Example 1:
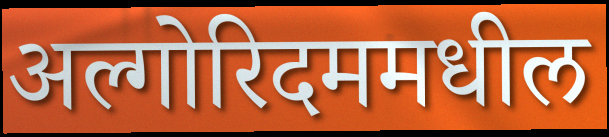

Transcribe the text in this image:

अल्गोरिदममधील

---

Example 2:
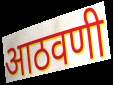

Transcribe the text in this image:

आठवणी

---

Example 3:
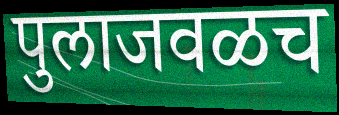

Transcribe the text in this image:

पुलाजवळच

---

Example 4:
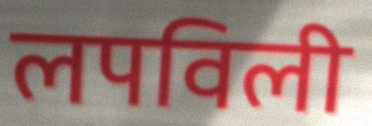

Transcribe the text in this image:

लपविली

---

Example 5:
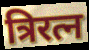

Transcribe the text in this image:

त्रिरत्न